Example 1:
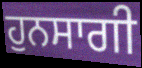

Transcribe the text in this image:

ਹੁਨਸਾਗੀ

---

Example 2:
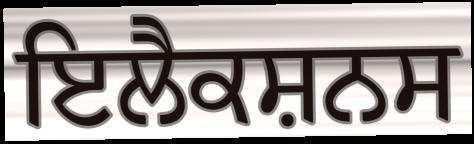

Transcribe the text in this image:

ਇਲੈਕਸ਼ਨਸ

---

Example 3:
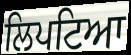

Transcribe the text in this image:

ਲਿਪਟਿਆ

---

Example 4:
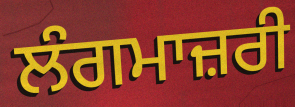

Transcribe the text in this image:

ਲੰਗਮਾਜ਼ਰੀ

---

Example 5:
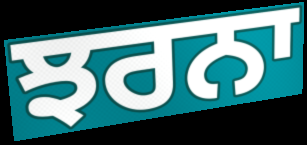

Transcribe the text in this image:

ਝਰਨਾ